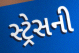
સ્ટ્રેસની